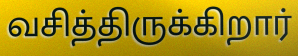
வசித்திருக்கிறார்